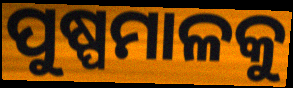
ପୁଷ୍ପମାଳକୁ